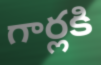
గార్లకి